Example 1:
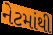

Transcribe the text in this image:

નેટમાંથી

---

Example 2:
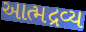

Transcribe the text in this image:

આત્મદ્રવ્ય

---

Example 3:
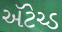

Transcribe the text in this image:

ઍટેચ્ડ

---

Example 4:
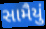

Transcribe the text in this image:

સામૈયું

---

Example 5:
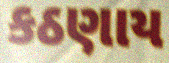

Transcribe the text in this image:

કઠણાય